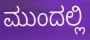
ಮುಂದಲ್ಲಿ